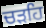
ਚੜਹਿ